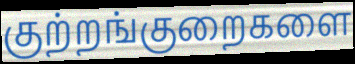
குற்றங்குறைகளை